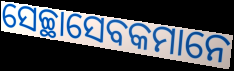
ସେଚ୍ଛାସେବକମାନେ